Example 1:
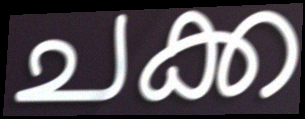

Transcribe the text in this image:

ചക്ക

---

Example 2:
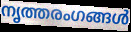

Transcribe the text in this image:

നൃത്തരംഗങ്ങൾ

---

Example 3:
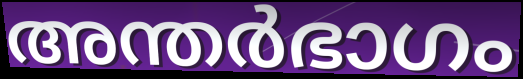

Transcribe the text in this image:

അന്തർഭാഗം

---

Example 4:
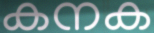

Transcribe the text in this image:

കനക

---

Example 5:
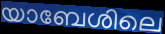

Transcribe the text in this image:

യാബേശിലെ